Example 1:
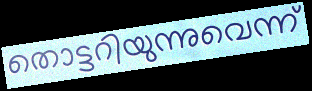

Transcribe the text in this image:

തൊട്ടറിയുന്നുവെന്ന്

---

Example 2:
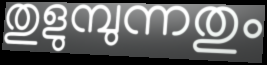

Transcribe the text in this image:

തുളുമ്പുന്നതും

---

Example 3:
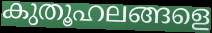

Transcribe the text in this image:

കുതൂഹലങ്ങളെ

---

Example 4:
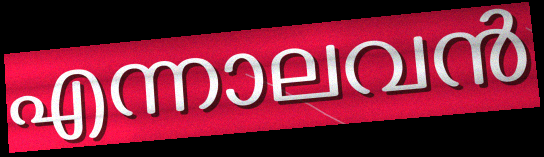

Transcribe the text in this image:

എന്നാലവൻ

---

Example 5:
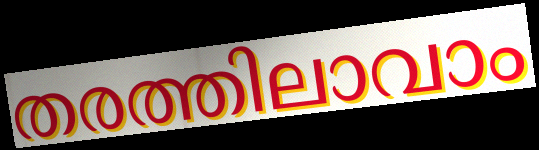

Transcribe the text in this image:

തരത്തിലാവാം